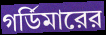
গর্ডিমারের